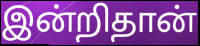
இன்றிதான்